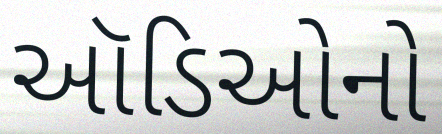
ઑડિઓનો